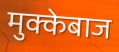
मुक्केबाज